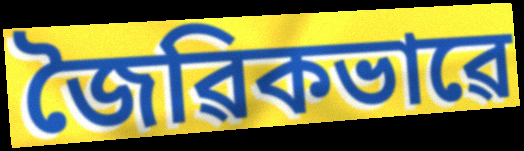
জৈৱিকভাৱে